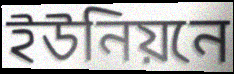
ইউনিয়নে